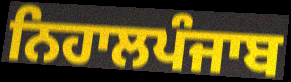
ਨਿਹਾਲਪੰਜਾਬ